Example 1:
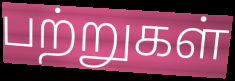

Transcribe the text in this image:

பற்றுகள்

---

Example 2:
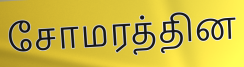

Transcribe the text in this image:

சோமரத்தின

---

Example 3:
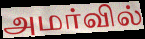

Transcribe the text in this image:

அமர்வில்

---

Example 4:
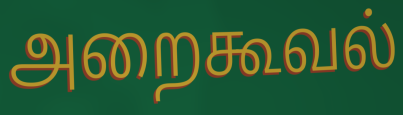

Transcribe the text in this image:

அறைகூவல்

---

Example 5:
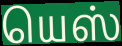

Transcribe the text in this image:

யெஸ்